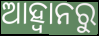
ଆହ୍ବାନରୁ